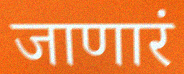
जाणारं